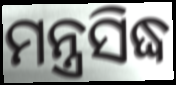
ମନ୍ତ୍ରସିଦ୍ଧ